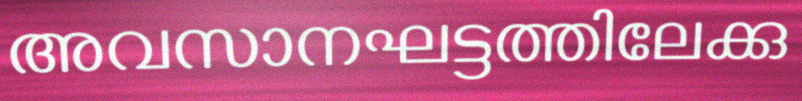
അവസാനഘട്ടത്തിലേക്കു